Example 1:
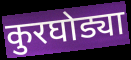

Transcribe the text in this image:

कुरघोड्या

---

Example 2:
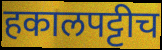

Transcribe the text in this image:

हकालपट्टीच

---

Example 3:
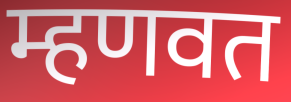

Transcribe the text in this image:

म्हणवत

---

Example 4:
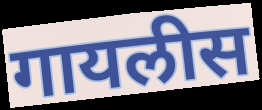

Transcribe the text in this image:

गायलीस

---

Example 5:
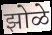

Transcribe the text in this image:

झोळे